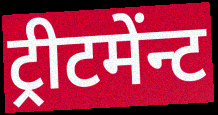
ट्रीटमेंन्ट